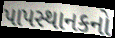
પાપસ્થાનકનો